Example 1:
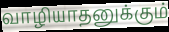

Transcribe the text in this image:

வாழியாதனுக்கும்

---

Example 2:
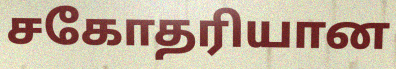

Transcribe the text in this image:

சகோதரியான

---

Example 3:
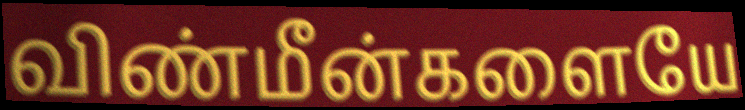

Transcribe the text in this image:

விண்மீன்களையே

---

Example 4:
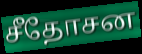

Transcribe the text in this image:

சீதோசன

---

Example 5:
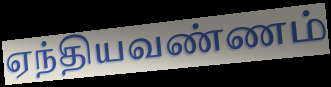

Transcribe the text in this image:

ஏந்தியவண்ணம்